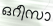
ഒറീസാ